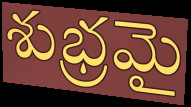
శుభ్రమై